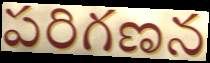
పరిగణన